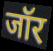
जॉर